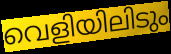
വെളിയിലിടും